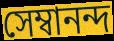
সেম্বানন্দ